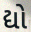
દ્યો